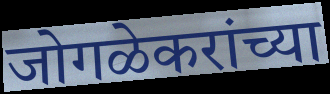
जोगळेकरांच्या